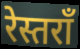
रेस्तराँ